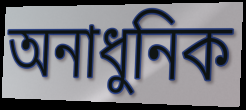
অনাধুনিক